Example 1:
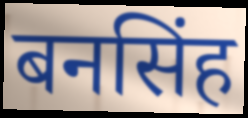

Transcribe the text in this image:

बनसिंह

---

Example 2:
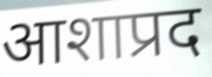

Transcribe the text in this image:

आशाप्रद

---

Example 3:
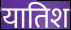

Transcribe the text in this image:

यातिश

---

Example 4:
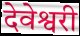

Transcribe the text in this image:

देवेश्वरी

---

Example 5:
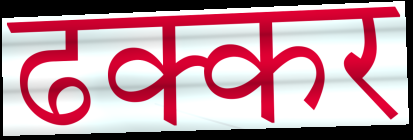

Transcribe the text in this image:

ढक्कर